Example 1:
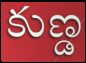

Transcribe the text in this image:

కుణ్డ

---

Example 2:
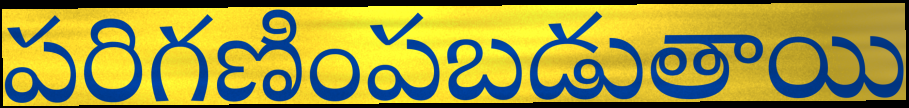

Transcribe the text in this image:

పరిగణింపబడుతాయి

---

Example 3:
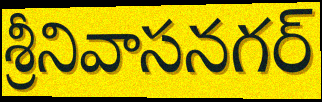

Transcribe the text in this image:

శ్రీనివాసనగర్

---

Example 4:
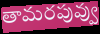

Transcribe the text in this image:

తామరపువ్వు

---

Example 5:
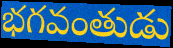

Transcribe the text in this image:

భగవంతుడు